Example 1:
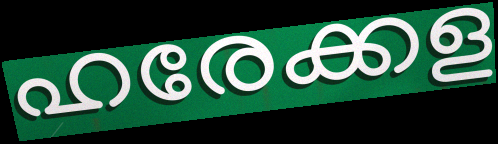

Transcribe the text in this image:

ഹരേക്കള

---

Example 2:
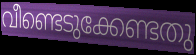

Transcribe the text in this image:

വീണ്ടെടുക്കേണ്ടതു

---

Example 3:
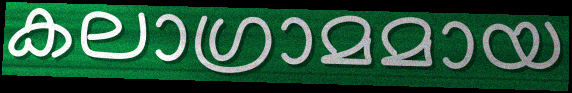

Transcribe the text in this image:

കലാഗ്രാമമായ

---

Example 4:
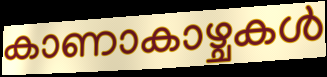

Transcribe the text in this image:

കാണാകാഴ്ചകൾ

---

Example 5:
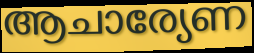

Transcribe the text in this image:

ആചാര്യേണ